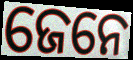
ଜେନେ